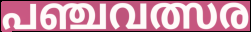
പഞ്ചവത്സര